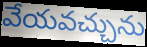
వేయవచ్చును